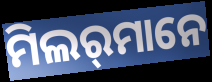
ମିଲର୍‌ମାନେ